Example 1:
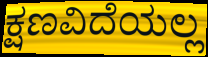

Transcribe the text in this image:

ಕ್ಷಣವಿದೆಯಲ್ಲ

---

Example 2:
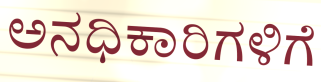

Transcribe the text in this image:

ಅನಧಿಕಾರಿಗಳಿಗೆ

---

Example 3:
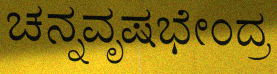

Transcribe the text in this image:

ಚನ್ನವೃಷಭೇಂದ್ರ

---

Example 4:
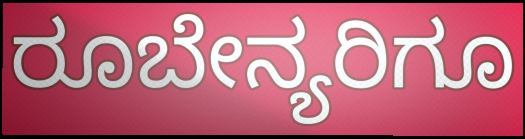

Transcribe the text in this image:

ರೂಬೇನ್ಯರಿಗೂ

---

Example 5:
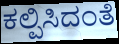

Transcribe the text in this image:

ಕಲ್ಪಿಸಿದಂತೆ